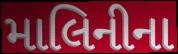
માલિનીના